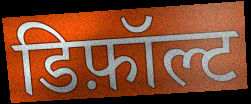
डिफ़ॉल्ट